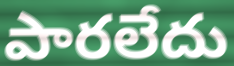
పారలేదు